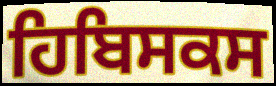
ਹਿਬਿਸਕਸ